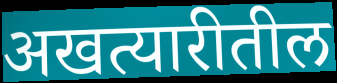
अखत्यारीतील